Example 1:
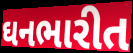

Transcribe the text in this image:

ઘનભારીત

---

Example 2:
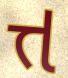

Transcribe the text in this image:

ત્ત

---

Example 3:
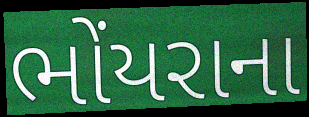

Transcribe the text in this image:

ભોંયરાના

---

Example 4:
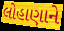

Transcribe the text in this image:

લોહાણાને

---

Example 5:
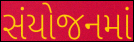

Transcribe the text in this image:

સંયોજનમાં